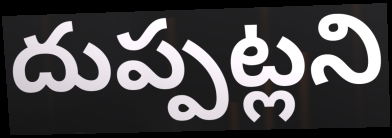
దుప్పట్లని